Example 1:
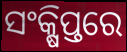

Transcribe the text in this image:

ସଂକ୍ଷିପ୍ତରେ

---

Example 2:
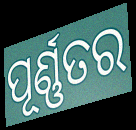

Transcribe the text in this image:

ପୂର୍ଣ୍ଣତର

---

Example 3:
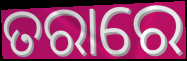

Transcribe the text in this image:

ତରାରେ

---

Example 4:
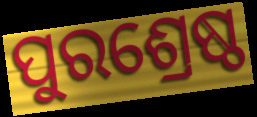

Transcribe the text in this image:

ପୁରଶ୍ରେଷ୍ଠ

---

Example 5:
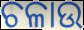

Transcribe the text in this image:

ଚଳାଉ